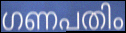
ഗണപതിം